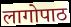
लागोपाठ